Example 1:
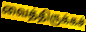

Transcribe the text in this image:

வைத்திருக்கச்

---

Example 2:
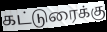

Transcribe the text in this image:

கட்டுரைக்கு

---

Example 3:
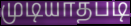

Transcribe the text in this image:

முடியாதபடி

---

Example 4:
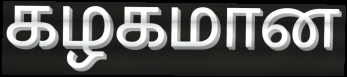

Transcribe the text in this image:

கழகமான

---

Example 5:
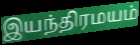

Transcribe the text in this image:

இயந்திரமயம்